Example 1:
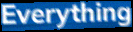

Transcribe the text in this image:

Everything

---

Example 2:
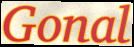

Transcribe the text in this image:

Gonal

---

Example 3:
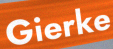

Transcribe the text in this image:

Gierke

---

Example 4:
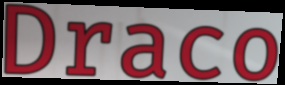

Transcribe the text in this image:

Draco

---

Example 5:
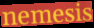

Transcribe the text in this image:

nemesis